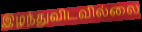
இழந்துவிடவில்லை